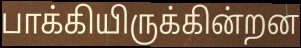
பாக்கியிருக்கின்றன